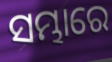
ସମ୍ଭାରେ